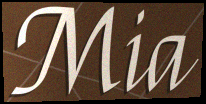
Mia